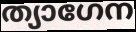
ത്യാഗേന